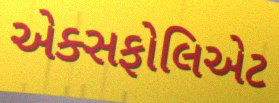
એક્સફોલિએટ